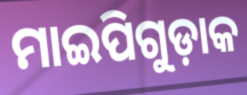
ମାଇପିଗୁଡ଼ାକ